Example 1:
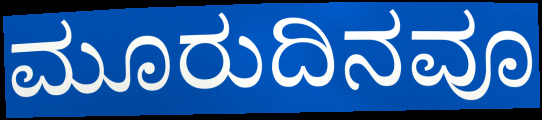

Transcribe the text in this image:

ಮೂರುದಿನವೂ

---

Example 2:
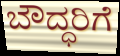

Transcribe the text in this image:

ಬೌದ್ಧರಿಗೆ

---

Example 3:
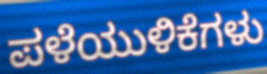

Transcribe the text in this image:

ಪಳೆಯುಳಿಕೆಗಳು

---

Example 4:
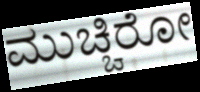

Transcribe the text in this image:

ಮುಚ್ಚಿರೋ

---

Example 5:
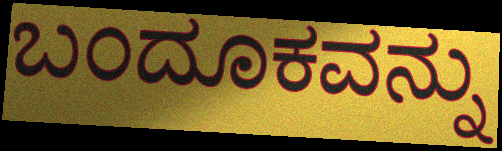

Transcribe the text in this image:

ಬಂದೂಕವನ್ನು